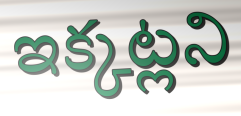
ఇక్కట్లని